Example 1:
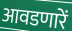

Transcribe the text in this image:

आवडणारें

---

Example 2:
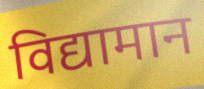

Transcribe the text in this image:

विद्यामान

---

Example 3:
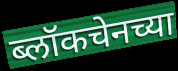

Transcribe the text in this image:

ब्लॉकचेनच्या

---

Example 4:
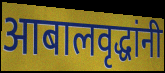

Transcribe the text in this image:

आबालवृद्धांनी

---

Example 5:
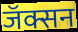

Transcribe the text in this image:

जॅक्सन